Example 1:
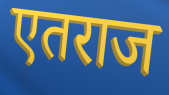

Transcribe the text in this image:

एतराज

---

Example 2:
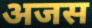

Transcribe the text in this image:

अजस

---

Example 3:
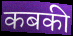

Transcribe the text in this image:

कबकी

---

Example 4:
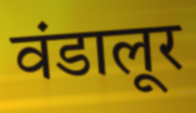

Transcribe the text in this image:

वंडालूर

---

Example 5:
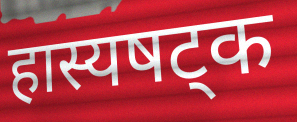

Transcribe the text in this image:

हास्यषट्क